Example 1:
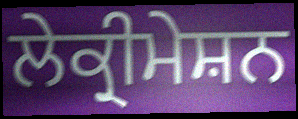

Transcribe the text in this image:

ਲੇਕ੍ਰੀਮੇਸ਼ਨ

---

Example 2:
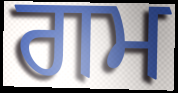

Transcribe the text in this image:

ਗਮ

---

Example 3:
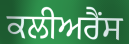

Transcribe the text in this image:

ਕਲੀਅਰੈਂਸ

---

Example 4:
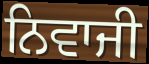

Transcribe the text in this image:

ਨਿਵਾਜੀ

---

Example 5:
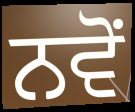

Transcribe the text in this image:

ਨਵੋਂ